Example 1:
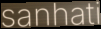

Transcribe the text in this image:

sanhati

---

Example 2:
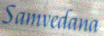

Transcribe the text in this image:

Samvedana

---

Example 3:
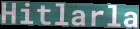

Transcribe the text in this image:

Hitlarla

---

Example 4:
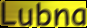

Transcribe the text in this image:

Lubna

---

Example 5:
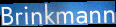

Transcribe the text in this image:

Brinkmann